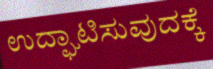
ಉದ್ಘಾಟಿಸುವುದಕ್ಕೆ